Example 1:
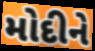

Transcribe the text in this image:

મોદીને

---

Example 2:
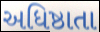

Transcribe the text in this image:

અધિષ્ઠાતા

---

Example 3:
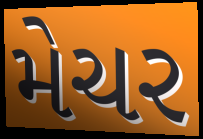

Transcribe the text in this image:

મેચર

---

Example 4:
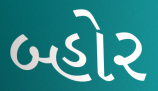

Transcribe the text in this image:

બ્હોર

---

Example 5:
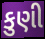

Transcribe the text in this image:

કુણી